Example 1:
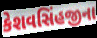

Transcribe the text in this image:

કેશવસિંહજીના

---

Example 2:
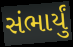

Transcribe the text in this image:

સંભાર્યું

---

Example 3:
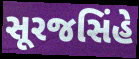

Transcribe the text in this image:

સૂરજસિંહે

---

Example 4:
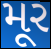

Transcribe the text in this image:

મૂર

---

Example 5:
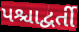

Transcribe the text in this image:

પશ્ચાદ્વર્તી